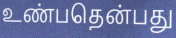
உண்பதென்பது